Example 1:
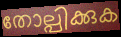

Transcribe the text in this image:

തോല്പിക്കുക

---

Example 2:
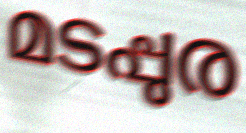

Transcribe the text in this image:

മടപ്പുര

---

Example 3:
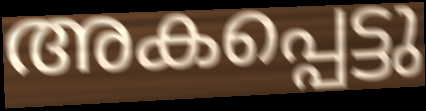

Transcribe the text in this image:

അകപ്പെട്ടു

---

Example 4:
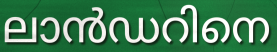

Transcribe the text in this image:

ലാൻഡറിനെ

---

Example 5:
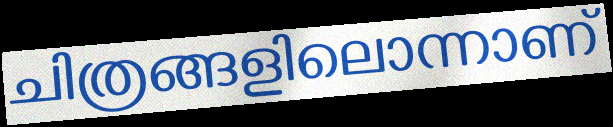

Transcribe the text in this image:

ചിത്രങ്ങളിലൊന്നാണ്